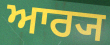
ਆਰ੍ਯ